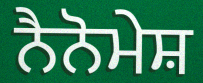
ਨੈਨੋਮੇਸ਼